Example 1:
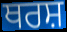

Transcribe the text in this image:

ਥਰਸ਼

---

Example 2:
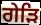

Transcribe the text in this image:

ਗੇੜਿ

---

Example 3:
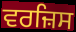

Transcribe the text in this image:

ਵਰਜ਼ਿਸ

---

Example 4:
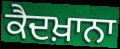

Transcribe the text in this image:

ਕੈਦਖ਼ਾਨਾ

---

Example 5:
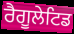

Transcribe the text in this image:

ਰੈਗੂਲੇਟਿਡ